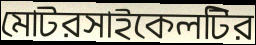
মোটরসাইকেলটির